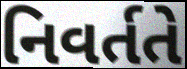
નિવર્તતે